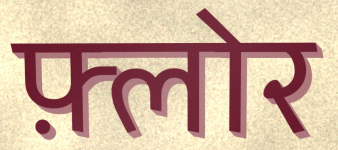
फ़्लोर